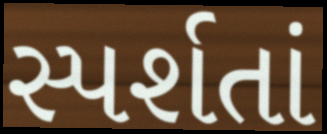
સ્પર્શતાં